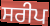
ਸਰੀਪ